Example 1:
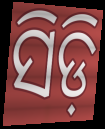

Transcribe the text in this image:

ସିଡ଼ି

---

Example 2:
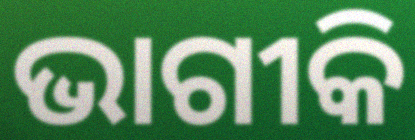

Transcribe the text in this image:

ଭାଗୀକି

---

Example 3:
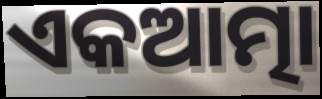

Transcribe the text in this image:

ଏକଆତ୍ମା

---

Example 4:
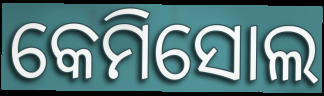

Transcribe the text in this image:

କେମିସୋଲ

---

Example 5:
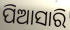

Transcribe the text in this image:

ପିଆସାରି